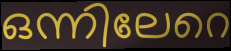
ഒന്നിലേറെ